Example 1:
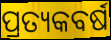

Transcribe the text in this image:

ପ୍ରତ୍ୟକବର୍ଷ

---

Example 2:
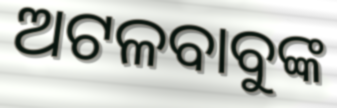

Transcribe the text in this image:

ଅଟଳବାବୁଙ୍କ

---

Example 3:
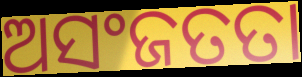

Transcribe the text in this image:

ଅସଂଜତତା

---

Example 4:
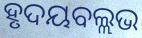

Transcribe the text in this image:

ହୃଦୟବଲ୍ଲଭ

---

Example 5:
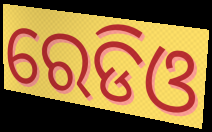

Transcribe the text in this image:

ରେଡିଓ